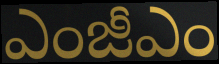
ఎంజీఎం